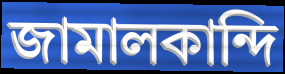
জামালকান্দি